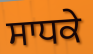
ਸਾਧਕੇ